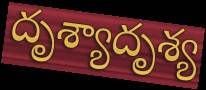
దృశ్యాదృశ్య